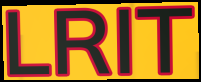
LRIT